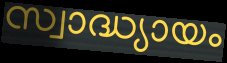
സ്വാദ്ധ്യായം